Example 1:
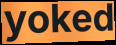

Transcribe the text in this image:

yoked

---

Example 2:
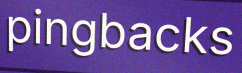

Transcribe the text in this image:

pingbacks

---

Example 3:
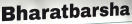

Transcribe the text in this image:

Bharatbarsha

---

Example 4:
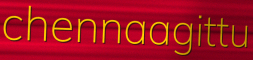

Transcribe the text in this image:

chennaagittu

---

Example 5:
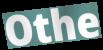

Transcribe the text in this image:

Othe